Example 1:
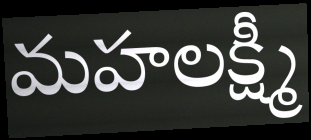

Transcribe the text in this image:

మహలక్ష్మీ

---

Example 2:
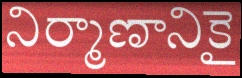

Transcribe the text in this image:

నిర్మాణానికై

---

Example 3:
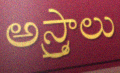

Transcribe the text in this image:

అస్ర్తాలు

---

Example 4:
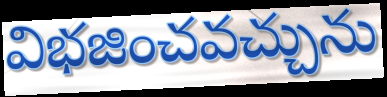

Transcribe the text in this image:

విభజించవచ్చును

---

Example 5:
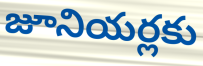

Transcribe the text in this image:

జూనియర్లకు